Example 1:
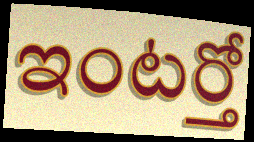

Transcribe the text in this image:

ఇంటర్తో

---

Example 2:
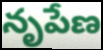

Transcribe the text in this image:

నృపేణ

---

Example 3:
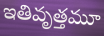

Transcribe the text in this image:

ఇతివృత్తమూ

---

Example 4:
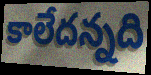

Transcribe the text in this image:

కాలేదన్నది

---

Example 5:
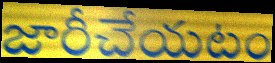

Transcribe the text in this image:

జారీచేయటం